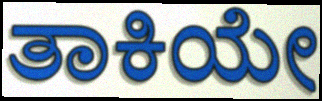
ತಾಕಿಯೇ